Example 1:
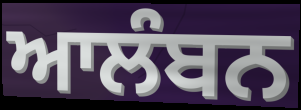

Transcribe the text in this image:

ਆਲੰਬਨ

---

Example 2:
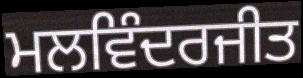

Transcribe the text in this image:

ਮਲਵਿੰਦਰਜੀਤ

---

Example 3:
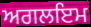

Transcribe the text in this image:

ਅਗਲਇਮ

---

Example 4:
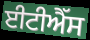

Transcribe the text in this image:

ਈਟੀਐੱਸ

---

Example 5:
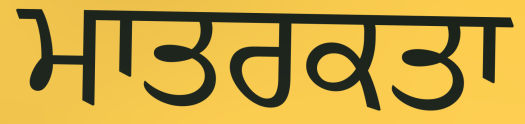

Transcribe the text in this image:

ਮਾਤਰਕਤਾ